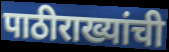
पाठीराख्यांची